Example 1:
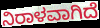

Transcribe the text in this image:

ನಿರಾಳವಾಗಿದೆ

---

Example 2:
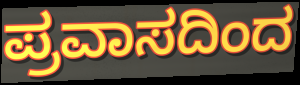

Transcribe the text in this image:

ಪ್ರವಾಸದಿಂದ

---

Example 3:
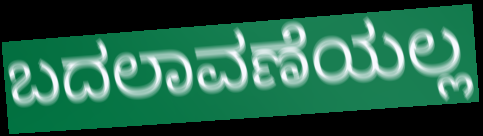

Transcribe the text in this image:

ಬದಲಾವಣೆಯಲ್ಲ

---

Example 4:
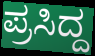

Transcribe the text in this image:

ಪ್ರಸಿದ್ದ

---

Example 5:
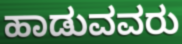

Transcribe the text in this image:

ಹಾಡುವವರು